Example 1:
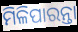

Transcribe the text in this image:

ମିଳିପାରନ୍ତା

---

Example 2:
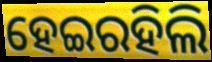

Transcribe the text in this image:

ହେଇରହିଲି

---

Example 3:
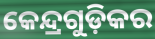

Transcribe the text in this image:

କେନ୍ଦ୍ରଗୁଡ଼ିକର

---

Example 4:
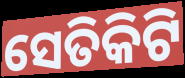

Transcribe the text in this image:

ସେତିକିଟି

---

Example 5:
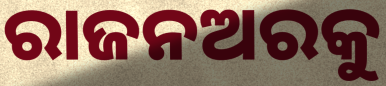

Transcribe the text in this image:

ରାଜନଅରକୁ